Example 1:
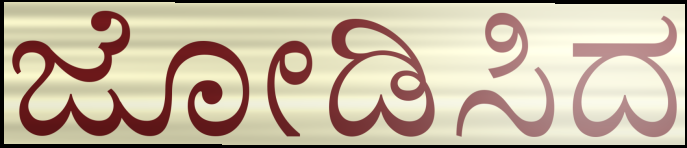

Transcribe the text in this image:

ಜೋಡಿಸಿದ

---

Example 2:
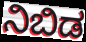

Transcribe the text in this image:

ನಿಬಿಡ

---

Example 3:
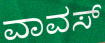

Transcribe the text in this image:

ವಾವಸ್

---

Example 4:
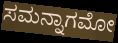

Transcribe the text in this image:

ಸಮನ್ನಾಗಮೋ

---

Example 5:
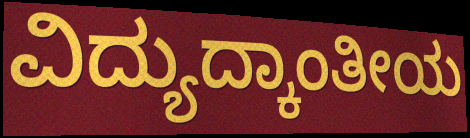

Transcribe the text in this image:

ವಿದ್ಯುದ್ಕಾಂತೀಯ